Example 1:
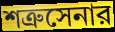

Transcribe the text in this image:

শত্রুসেনার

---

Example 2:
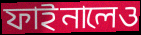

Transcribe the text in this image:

ফাইনালেও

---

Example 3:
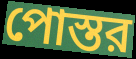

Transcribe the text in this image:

পোস্তর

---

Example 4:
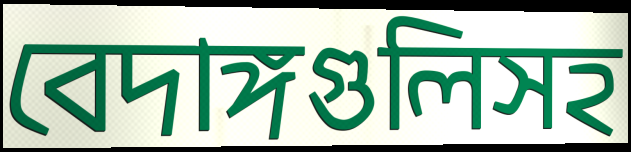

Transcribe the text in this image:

বেদাঙ্গগুলিসহ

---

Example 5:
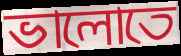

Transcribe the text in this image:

ভালোতে